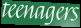
teenagers